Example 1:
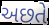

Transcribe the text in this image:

અછતે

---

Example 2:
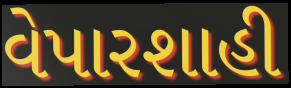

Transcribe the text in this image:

વેપારશાહી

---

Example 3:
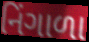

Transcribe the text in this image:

નિંગાળા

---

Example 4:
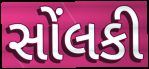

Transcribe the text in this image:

સોંલકી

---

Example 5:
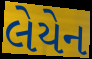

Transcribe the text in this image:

લેયેન